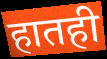
हातही